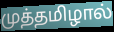
முத்தமிழால்